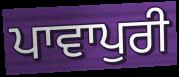
ਪਾਵਾਪੁਰੀ